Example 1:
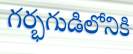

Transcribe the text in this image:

గర్భగుడిలోనికి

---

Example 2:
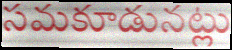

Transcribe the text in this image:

సమకూడునట్లు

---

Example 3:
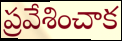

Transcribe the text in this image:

ప్రవేశించాక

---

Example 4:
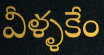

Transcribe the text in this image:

వీళ్ళకేం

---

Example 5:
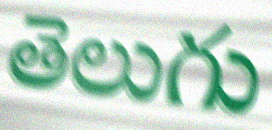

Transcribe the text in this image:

తెలుగు